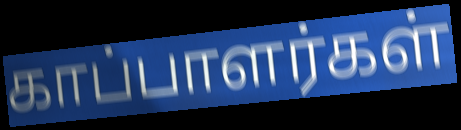
காப்பாளர்கள்